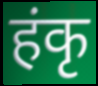
हंकृ